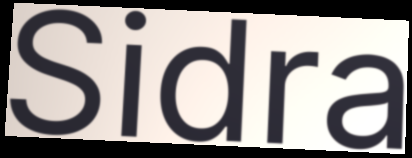
Sidra